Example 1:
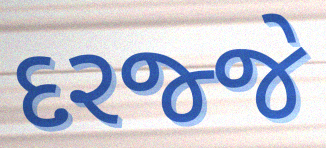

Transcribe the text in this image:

દરજ્જે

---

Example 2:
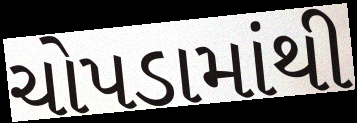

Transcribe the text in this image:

ચોપડામાંથી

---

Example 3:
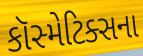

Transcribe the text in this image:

કૉસ્મેટિક્સના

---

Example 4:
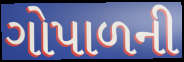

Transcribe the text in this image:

ગોપાળની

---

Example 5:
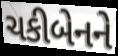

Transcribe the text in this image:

ચકીબેનને